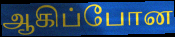
ஆகிப்போன